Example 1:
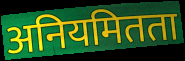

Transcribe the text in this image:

अनियमितता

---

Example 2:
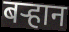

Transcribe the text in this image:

बऱ्हान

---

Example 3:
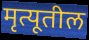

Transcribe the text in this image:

मृत्यूतील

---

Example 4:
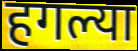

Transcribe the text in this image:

हगल्या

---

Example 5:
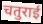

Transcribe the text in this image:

चतुराई